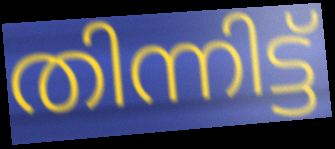
തിന്നിട്ട്